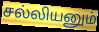
சல்லியனும்